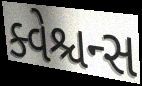
ક્વેશ્ચન્સ